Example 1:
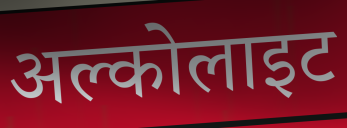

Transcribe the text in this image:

अल्कोलाइट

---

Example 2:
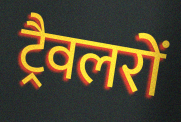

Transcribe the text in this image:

ट्रैवलरों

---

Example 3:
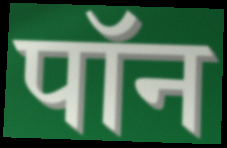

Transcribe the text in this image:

पॉन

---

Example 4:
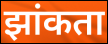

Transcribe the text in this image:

झांकता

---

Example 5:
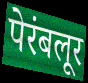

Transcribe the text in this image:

पेरंबलूर